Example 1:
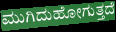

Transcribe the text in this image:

ಮುಗಿದುಹೋಗುತ್ತದೆ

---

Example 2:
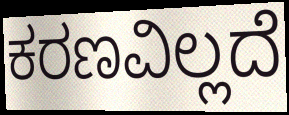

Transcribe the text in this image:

ಕರಣವಿಲ್ಲದೆ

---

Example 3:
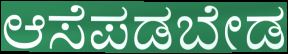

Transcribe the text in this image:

ಆಸೆಪಡಬೇಡ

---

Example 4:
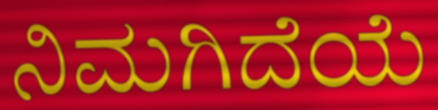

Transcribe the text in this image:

ನಿಮಗಿದೆಯೆ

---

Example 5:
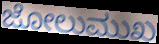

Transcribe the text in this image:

ಜೋಲುಮುಖ